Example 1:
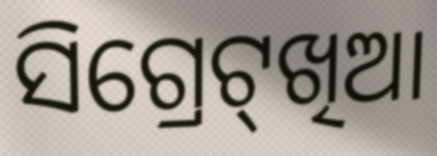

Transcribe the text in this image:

ସିଗ୍ରେଟ୍‌ଖିଆ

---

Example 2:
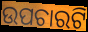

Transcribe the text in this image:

ଉପଚାରଟି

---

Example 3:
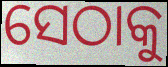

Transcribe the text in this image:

ସେଠାକୁ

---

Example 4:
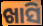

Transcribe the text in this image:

ଖାସି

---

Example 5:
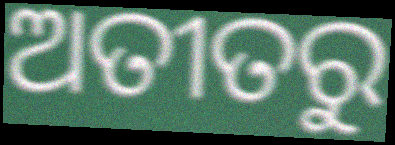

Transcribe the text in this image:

ଅତୀତରୁ